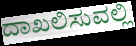
ದಾಖಲಿಸುವಲ್ಲಿ